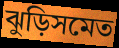
ঝুড়িসমেত